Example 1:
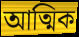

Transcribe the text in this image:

আত্মিক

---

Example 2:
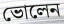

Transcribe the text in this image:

ভোলেন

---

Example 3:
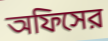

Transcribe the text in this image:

অফিসের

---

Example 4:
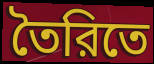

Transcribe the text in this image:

তৈরিতে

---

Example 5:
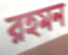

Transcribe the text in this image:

রহমন